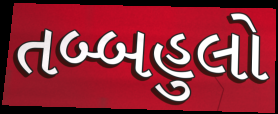
તબ્બહુલો